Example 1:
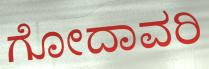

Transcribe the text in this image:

ಗೋದಾವರಿ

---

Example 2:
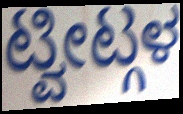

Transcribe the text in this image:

ಟ್ವೀಟ್ಗಳ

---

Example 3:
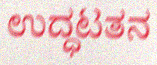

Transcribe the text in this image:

ಉದ್ಧಟತನ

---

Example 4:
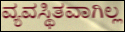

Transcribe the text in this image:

ವ್ಯವಸ್ಥಿತವಾಗಿಲ್ಲ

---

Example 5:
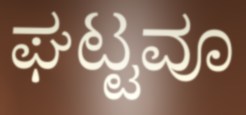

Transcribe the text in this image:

ಘಟ್ಟವೂ